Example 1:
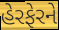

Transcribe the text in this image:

હેરફેરને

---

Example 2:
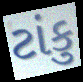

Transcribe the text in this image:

ટાંકુ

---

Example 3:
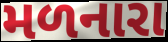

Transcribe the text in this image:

મળનારા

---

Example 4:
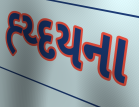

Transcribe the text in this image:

હ્ય્દયના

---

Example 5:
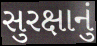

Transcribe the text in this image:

સુરક્ષાનું